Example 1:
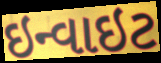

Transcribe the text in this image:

ઇન્વાઇટ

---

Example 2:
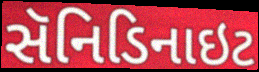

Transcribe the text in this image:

સૅનિડિનાઇટ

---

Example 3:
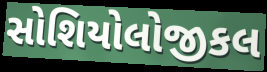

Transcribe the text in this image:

સોશિયોલોજીકલ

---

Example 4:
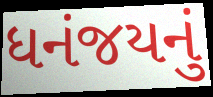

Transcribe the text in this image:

ધનંજયનું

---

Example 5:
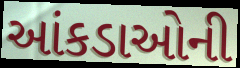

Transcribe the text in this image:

આંકડાઓની